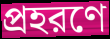
প্রহরণে